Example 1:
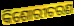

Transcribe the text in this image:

କିଶୋରୀଚରଣ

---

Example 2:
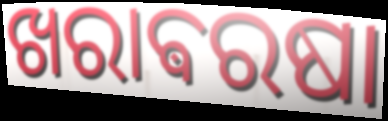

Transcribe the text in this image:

ଖରାଵରଷା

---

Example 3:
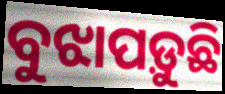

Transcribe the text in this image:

ବୁଝାପଡ଼ୁଛି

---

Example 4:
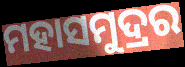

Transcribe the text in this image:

ମହାସମୁଦ୍ରର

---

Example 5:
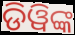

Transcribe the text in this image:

ଡିୱିଙ୍କ